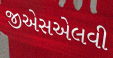
જીએસએલવી